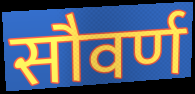
सौवर्ण